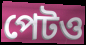
পেটও